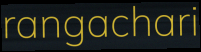
rangachari